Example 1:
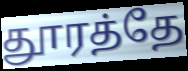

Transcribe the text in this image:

தூரத்தே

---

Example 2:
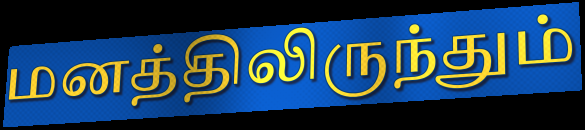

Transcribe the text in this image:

மனத்திலிருந்தும்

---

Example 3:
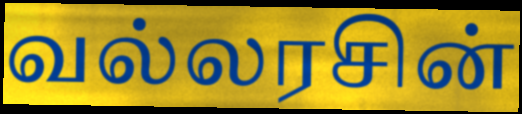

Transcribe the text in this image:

வல்லரசின்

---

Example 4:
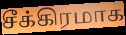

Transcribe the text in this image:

சீக்கிரமாக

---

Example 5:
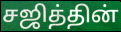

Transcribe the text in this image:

சஜித்தின்